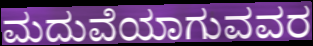
ಮದುವೆಯಾಗುವವರ